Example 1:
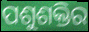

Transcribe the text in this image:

ପଶୁଶକ୍ତିର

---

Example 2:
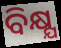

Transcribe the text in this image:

ବିକ୍ଷ୍ଯ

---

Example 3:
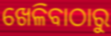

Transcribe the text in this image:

ଖେଳିବାଠାରୁ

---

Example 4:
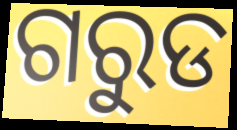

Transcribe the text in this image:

ଗରୁଡ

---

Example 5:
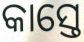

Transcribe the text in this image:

କାସ୍ତେ